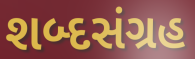
શબ્દસંગ્રહ